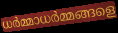
ധർമ്മാധർമ്മങ്ങളെ